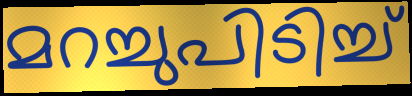
മറച്ചുപിടിച്ച്